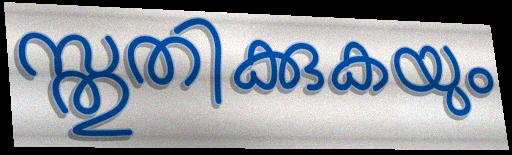
സ്തുതിക്കുകയും